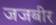
जजबीर